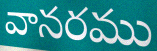
వానరము